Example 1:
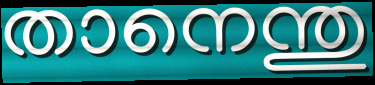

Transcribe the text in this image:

താനെന്തു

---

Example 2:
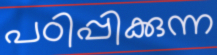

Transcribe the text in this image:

പഠിപ്പിക്കുന്ന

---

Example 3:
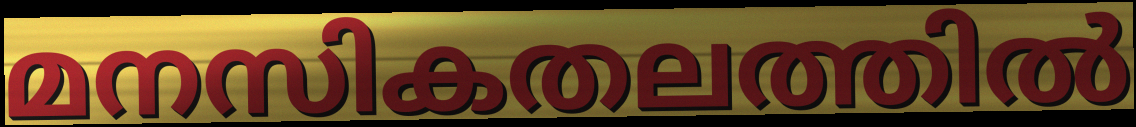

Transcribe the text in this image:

മനസികതലത്തിൽ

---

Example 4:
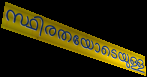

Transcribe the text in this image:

സ്ഥിരതയോടെയുള്ള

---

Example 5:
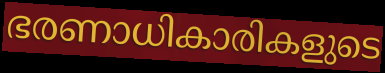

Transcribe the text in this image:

ഭരണാധികാരികളുടെ